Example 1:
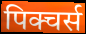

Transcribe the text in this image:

पिक्चर्स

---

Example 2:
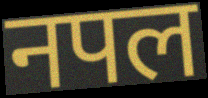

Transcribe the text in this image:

नपल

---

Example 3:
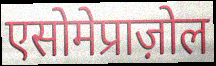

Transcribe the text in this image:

एसोमेप्राज़ोल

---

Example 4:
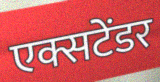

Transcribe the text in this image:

एक्सटेंडर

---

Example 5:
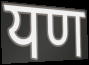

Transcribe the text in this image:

यण